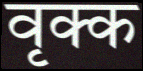
वृक्क